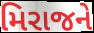
મિરાજને